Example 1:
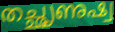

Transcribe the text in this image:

തച്ഛൃണുഷ്വ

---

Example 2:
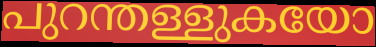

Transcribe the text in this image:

പുറന്തള്ളുകയോ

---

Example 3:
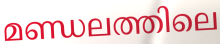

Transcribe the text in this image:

മണ്ഡലത്തിലെ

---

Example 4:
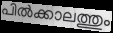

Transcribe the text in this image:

പിൽക്കാലത്തും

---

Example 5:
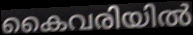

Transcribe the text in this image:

കൈവരിയിൽ